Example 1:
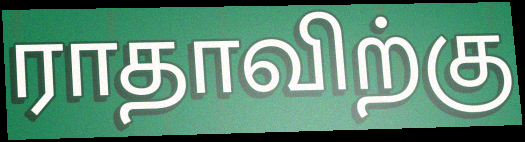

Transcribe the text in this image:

ராதாவிற்கு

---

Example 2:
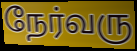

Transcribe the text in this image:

நேர்வரு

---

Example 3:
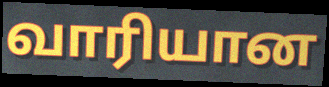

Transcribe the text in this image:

வாரியான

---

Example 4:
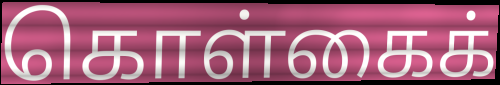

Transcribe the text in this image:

கொள்கைக்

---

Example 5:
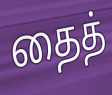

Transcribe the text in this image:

தைத்